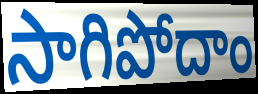
సాగిపోదాం